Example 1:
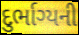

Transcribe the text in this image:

દુર્ભાગ્યની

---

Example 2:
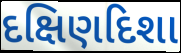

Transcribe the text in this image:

દક્ષિણદિશા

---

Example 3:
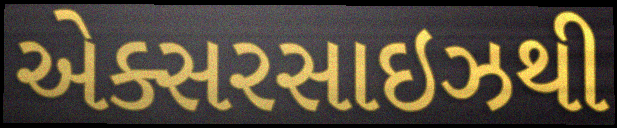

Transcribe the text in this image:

એક્સરસાઇઝથી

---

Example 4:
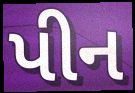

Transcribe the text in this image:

પીન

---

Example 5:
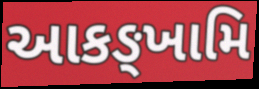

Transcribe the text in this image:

આકઙ્ખામિ